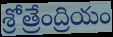
శ్రోత్రేంద్రియం